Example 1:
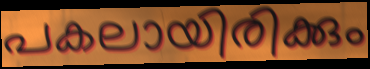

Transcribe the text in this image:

പകലായിരിക്കും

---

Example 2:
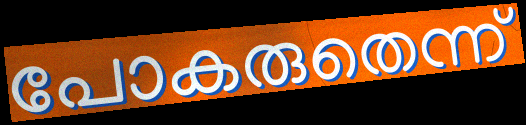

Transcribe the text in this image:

പോകരുതെന്ന്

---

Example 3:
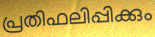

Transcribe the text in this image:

പ്രതിഫലിപ്പിക്കും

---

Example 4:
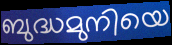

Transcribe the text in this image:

ബുദ്ധമുനിയെ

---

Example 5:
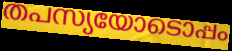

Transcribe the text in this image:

തപസ്യയോടൊപ്പം